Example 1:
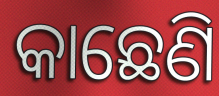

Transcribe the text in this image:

କାଛେଣି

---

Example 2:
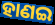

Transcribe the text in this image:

ହାଣଇ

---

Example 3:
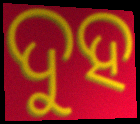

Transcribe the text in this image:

ଦୁହ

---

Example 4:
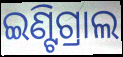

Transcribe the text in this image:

ଇଣ୍ଟିଗ୍ରାଲ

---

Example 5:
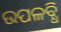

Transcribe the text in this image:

ଉପଳବ୍ଧି